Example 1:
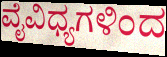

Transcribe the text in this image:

ವೈವಿಧ್ಯಗಳಿಂದ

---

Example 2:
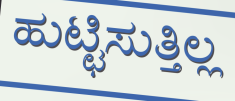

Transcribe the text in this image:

ಹುಟ್ಟಿಸುತ್ತಿಲ್ಲ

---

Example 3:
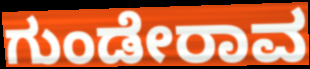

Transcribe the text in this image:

ಗುಂಡೇರಾವ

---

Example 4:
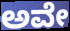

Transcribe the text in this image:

ಅವೇ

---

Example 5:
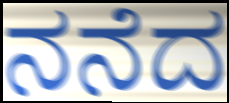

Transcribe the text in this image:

ನನೆದ